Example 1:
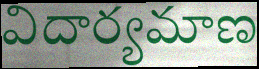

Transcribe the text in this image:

విదార్యమాణ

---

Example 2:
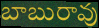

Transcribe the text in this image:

బాబురావు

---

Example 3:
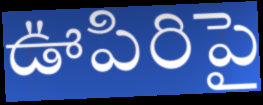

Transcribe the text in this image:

ఊపిరిపై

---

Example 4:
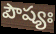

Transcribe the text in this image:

పౌష్యః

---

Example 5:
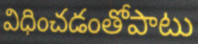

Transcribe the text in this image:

విధించడంతోపాటు